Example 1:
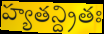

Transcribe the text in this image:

హ్యతన్ద్రితః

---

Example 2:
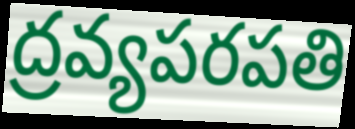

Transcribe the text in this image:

ద్రవ్యపరపతి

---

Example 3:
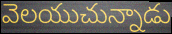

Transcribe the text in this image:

వెలయుచున్నాడు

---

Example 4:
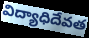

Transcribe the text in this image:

విద్యాధిదేవత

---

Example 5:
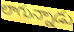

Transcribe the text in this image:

లాగున్నాడు